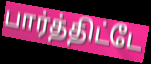
பார்த்திட்டே